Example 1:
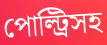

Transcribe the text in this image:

পোল্ট্রিসহ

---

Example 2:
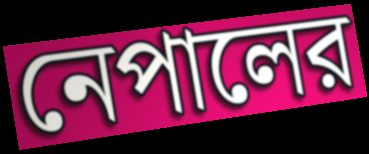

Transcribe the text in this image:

নেপালের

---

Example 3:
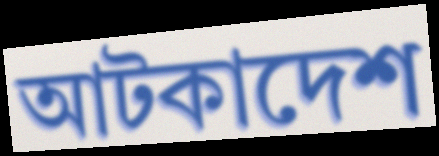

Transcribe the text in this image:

আটকাদেশ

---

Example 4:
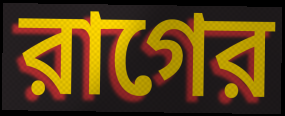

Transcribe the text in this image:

রাগের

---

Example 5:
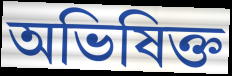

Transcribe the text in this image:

অভিষিক্ত